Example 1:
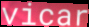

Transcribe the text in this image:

vicar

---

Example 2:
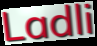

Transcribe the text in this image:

Ladli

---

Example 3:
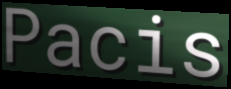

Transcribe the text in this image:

Pacis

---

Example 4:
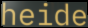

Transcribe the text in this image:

heide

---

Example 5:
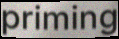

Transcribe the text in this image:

priming